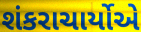
શંકરાચાર્યોએ